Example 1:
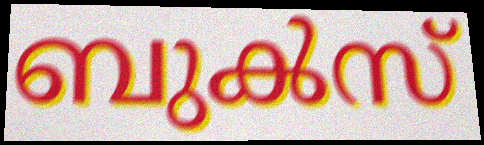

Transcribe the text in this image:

ബുൿസ്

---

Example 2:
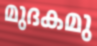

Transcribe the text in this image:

മുദകമു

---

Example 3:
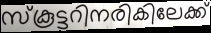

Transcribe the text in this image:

സ്കൂട്ടറിനരികിലേക്ക്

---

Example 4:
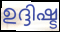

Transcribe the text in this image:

ഉദ്ദിഷ്ട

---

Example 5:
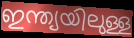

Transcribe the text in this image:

ഇന്ത്യയിലുള്ള